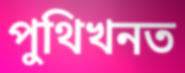
পুথিখনত